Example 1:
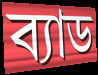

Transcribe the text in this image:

ব্যাড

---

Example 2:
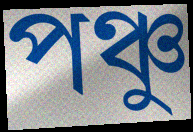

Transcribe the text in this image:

পঞ্চু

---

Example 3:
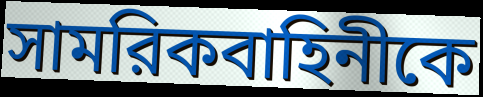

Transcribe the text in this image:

সামরিকবাহিনীকে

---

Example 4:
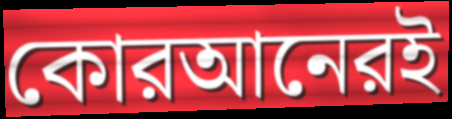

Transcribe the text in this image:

কোরআনেরই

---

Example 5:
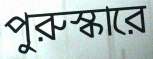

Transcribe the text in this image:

পুরুস্কারে